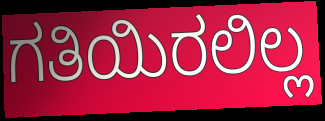
ಗತಿಯಿರಲಿಲ್ಲ